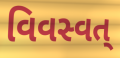
વિવસ્વત્